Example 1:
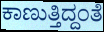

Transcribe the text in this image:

ಕಾಣುತ್ತಿದ್ದಂತೆ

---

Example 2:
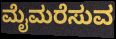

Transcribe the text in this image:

ಮೈಮರೆಸುವ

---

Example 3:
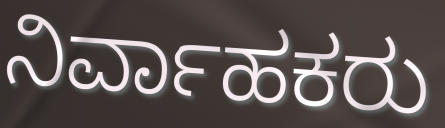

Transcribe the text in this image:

ನಿರ್ವಾಹಕರು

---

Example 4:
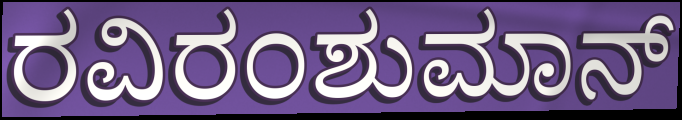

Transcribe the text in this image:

ರವಿರಂಶುಮಾನ್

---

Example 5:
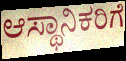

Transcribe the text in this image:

ಆಸ್ಥಾನಿಕರಿಗೆ